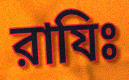
রাযিঃ